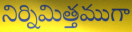
నిర్నిమిత్తముగా